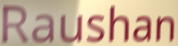
Raushan